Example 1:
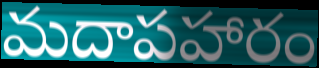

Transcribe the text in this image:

మదాపహారం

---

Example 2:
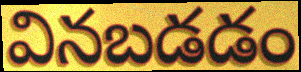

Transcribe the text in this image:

వినబడడం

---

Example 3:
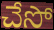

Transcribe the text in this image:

చేసో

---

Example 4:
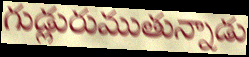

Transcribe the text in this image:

గుడ్లురుముతున్నాడు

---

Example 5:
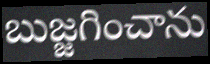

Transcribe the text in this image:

బుజ్జగించాను